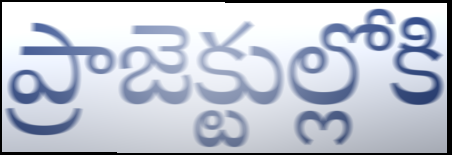
ప్రాజెక్టుల్లోకి